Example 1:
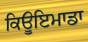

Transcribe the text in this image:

ਕਿਊਇਮਾਡਾ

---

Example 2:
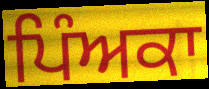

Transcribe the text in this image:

ਪਿੰਅਕਾ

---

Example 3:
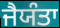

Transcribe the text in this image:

ਜੈਯੰਤਾ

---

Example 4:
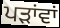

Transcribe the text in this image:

ਪੜਾਂਵਾਂ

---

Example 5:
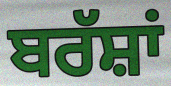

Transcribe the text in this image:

ਬਰੱਸ਼ਾਂ